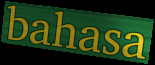
bahasa